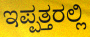
ಇಪ್ಪತ್ತರಲ್ಲಿ